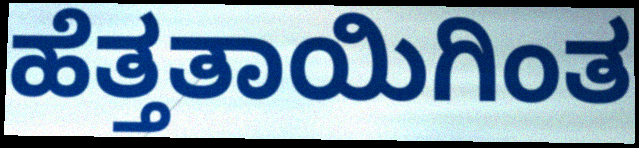
ಹೆತ್ತತಾಯಿಗಿಂತ